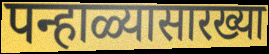
पन्हाळ्यासारख्या